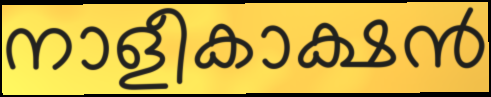
നാളീകാക്ഷൻ